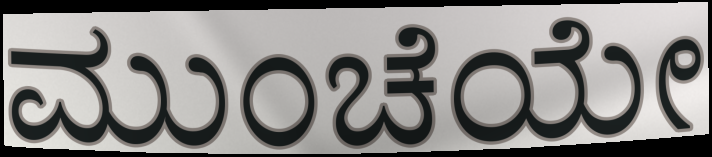
ಮುಂಚೆಯೇ